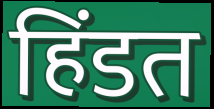
हिंडत